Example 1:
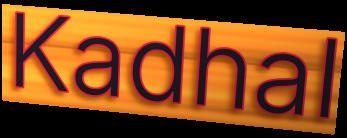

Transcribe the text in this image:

Kadhal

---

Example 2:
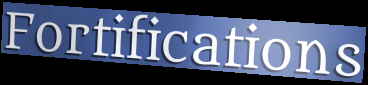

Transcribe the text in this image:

Fortifications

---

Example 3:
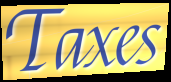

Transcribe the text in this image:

Taxes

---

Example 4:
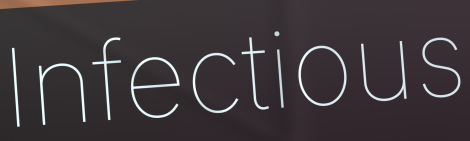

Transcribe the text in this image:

Infectious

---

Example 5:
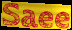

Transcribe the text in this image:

Saee